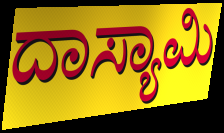
ದಾಸ್ಯಾಮಿ